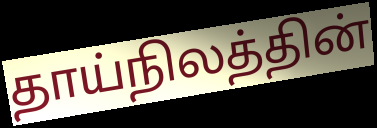
தாய்நிலத்தின்